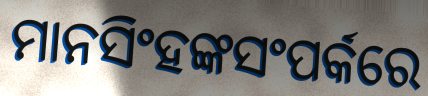
ମାନସିଂହଙ୍କସଂପର୍କରେ